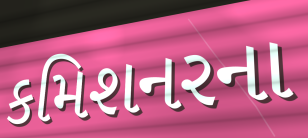
કમિશનરના